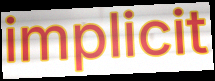
implicit